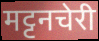
मट्टनचेरी